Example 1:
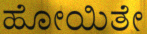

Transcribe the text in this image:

ಹೋಯಿತೇ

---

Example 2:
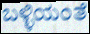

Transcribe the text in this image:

ಬಳ್ಳಿಯಂತೆ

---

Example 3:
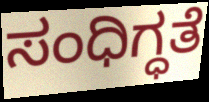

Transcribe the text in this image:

ಸಂಧಿಗ್ಧತೆ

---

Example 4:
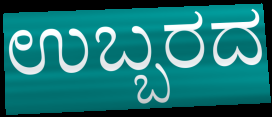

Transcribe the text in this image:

ಉಬ್ಬರದ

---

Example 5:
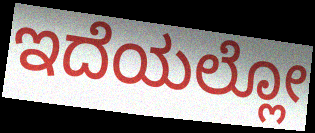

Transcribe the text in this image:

ಇದೆಯಲ್ಲೋ